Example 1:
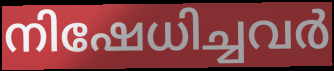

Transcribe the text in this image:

നിഷേധിച്ചവർ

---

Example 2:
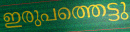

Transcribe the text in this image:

ഇരുപത്തെട്ടു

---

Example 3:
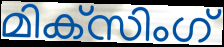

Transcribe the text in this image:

മിക്‌സിംഗ്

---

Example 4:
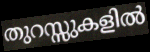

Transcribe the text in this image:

തുറസ്സുകളിൽ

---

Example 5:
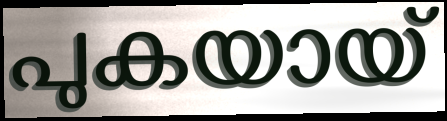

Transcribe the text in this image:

പുകയായ്